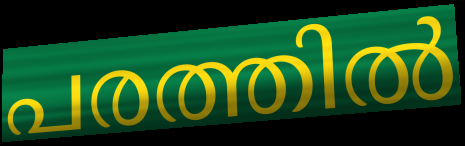
പരത്തിൽ